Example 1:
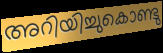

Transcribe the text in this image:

അറിയിച്ചുകൊണ്ടു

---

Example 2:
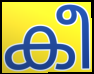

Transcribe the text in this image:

കീ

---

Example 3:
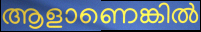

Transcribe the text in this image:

ആളാണെങ്കിൽ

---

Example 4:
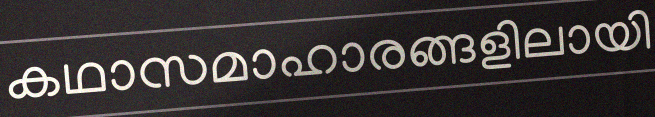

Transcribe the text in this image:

കഥാസമാഹാരങ്ങളിലായി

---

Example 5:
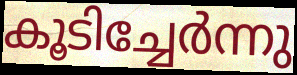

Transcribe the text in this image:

കൂടിച്ചേർന്നു